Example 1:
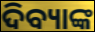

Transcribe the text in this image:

ଦିବ୍ୟାଙ୍କ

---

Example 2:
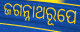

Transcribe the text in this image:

ଜଗନ୍ନାଥରୂପେ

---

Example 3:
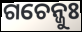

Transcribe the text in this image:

ଗଚେନ୍ଜୁଃ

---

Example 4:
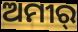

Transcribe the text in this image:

ଅମୀର୍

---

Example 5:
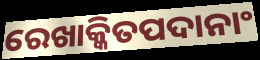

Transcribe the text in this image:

ରେଖାକ୍କିତପଦାନାଂ